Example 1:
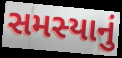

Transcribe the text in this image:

સમસ્યાનું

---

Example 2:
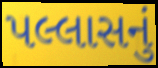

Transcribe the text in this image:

પલ્લાસનું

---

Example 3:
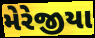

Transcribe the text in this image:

મેરેજીયા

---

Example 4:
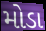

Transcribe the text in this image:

મોડા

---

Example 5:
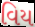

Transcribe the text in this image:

વિય